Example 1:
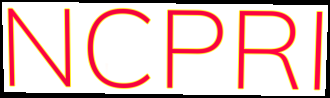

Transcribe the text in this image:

NCPRI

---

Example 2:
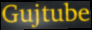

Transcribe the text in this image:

Gujtube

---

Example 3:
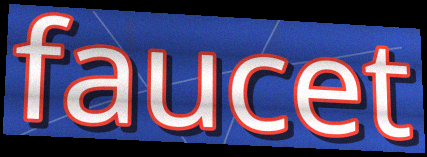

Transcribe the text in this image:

faucet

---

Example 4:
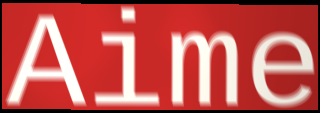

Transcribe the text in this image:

Aime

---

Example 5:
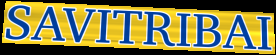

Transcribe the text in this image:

SAVITRIBAI